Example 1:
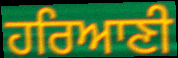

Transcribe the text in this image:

ਹਰਿਆਣੀ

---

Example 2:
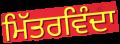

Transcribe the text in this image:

ਮਿੱਤਰਵਿੰਦਾ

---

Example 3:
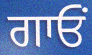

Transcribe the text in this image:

ਗਾਓਂ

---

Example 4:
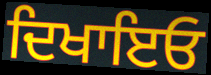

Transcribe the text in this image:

ਦਿਖਾਇਓ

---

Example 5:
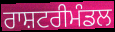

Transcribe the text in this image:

ਰਾਸ਼ਟਰੀਮੰਡਲ